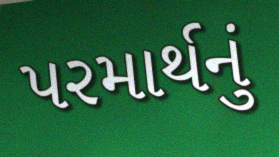
પરમાર્થનું